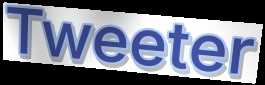
Tweeter